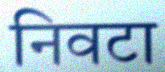
निवटा